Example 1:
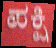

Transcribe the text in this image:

ಪಕ್ಷಿ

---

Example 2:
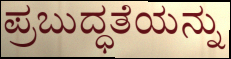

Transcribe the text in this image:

ಪ್ರಬುದ್ಧತೆಯನ್ನು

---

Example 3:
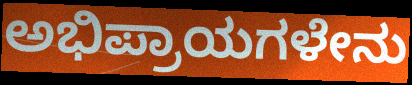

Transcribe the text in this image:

ಅಭಿಪ್ರಾಯಗಳೇನು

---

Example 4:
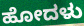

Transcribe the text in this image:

ಹೋದಳು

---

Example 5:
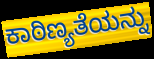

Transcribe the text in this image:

ಕಾಠಿಣ್ಯತೆಯನ್ನು